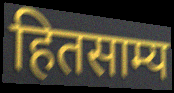
हितसाम्य